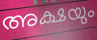
അക്ഷയും